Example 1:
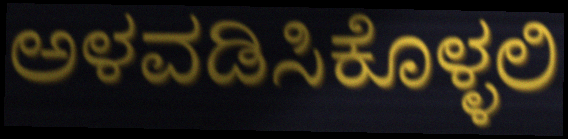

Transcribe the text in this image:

ಅಳವಡಿಸಿಕೊಳ್ಳಲಿ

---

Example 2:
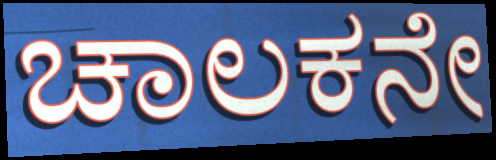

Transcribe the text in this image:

ಚಾಲಕನೇ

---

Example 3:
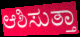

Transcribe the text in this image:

ಆಶಿಸುತ್ತಾ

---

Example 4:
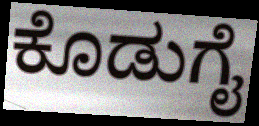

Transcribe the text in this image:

ಕೊಡುಗೈ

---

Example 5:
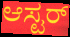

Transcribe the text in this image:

ಆಸ್ಟರ್